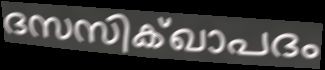
ദസസിക്ഖാപദം